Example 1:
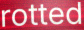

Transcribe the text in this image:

rotted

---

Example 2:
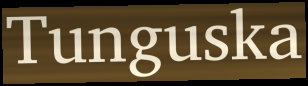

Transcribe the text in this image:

Tunguska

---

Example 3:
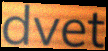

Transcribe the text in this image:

dvet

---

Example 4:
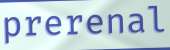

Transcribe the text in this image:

prerenal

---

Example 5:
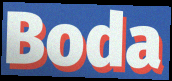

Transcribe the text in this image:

Boda